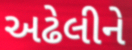
અઢેલીને